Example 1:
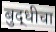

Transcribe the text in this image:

बुद्धीचा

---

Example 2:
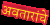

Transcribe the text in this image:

अवतारांचे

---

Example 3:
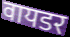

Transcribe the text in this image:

वायडर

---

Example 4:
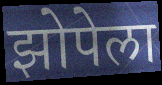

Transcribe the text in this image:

झोपेला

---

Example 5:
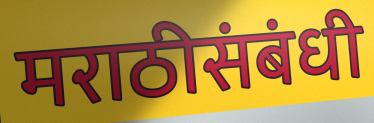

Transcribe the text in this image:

मराठीसंबंधी